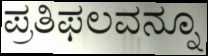
ಪ್ರತಿಫಲವನ್ನೂ